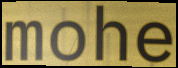
mohe